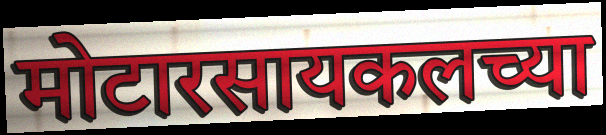
मोटारसायकलच्या